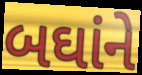
બઘાંને